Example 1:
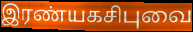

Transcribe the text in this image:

இரண்யகசிபுவை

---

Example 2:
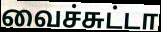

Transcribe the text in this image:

வைச்சுட்டா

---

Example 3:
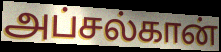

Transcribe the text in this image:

அப்சல்கான்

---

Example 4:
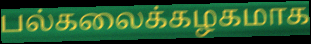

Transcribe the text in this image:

பல்கலைக்கழகமாக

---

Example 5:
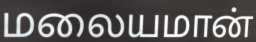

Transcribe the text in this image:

மலையமான்